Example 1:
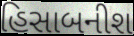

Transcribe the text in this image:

હિસાબનીશ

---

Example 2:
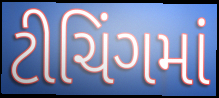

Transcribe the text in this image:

ટીચિંગમાં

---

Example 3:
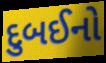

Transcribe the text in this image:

દુબઈનો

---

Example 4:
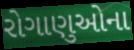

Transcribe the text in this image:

રોગાણુઓના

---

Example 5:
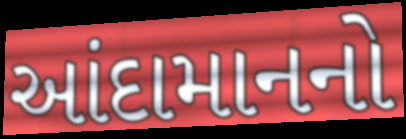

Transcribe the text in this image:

આંદામાનનો